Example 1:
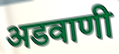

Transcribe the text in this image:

अडवाणी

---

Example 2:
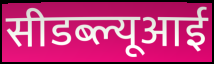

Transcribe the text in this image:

सीडब्ल्यूआई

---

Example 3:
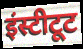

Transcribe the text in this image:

इंस्टीटूट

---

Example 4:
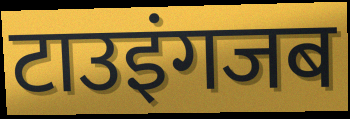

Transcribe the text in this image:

टाउइंगजब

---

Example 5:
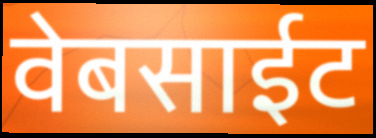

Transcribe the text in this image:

वेबसाईट